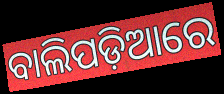
ବାଲିପଡ଼ିଆରେ